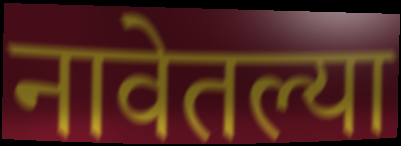
नावेतल्या